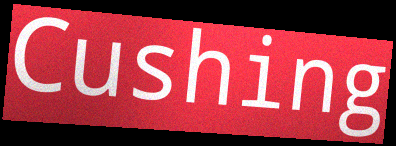
Cushing